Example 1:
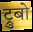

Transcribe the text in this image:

ट्रुबो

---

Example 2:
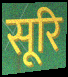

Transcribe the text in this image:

सूरि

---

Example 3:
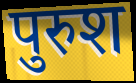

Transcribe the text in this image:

पुरुश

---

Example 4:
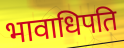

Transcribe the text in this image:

भावाधिपति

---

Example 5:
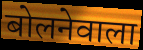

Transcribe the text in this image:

बोलनेवाला